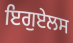
ਇਗੁਏਲਸ